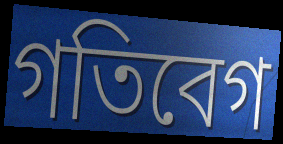
গতিবেগ